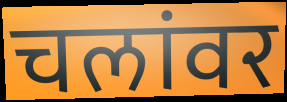
चलांवर